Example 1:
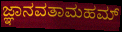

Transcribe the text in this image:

ಜ್ಞಾನವತಾಮಹಮ್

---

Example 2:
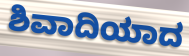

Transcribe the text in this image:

ಶಿವಾದಿಯಾದ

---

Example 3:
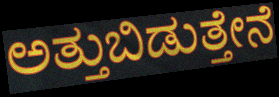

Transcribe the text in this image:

ಅತ್ತುಬಿಡುತ್ತೇನೆ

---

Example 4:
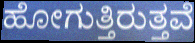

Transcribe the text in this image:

ಹೋಗುತ್ತಿರುತ್ತವೆ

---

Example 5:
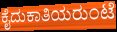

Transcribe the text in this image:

ಕೈದುಕಾತಿಯರುಂಟೆ